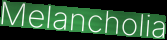
Melancholia